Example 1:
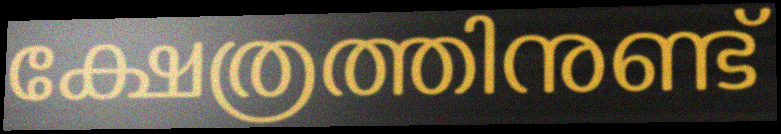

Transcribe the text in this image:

ക്ഷേത്രത്തിനുണ്ട്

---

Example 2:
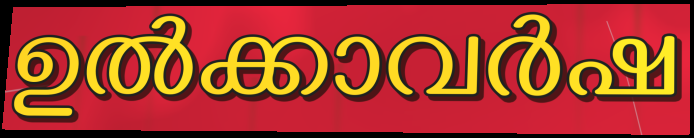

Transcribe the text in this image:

ഉൽക്കാവർഷ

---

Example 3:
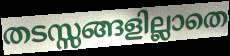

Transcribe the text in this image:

തടസ്സങ്ങളില്ലാതെ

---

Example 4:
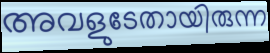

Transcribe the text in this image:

അവളുടേതായിരുന്ന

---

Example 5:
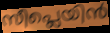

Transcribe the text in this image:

സീപ്ലെയിൻ